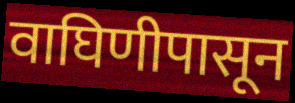
वाघिणीपासून